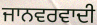
ਜਾਨਵਰਵਾਦੀ